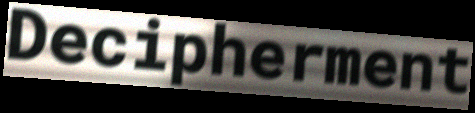
Decipherment